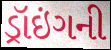
ડ્રૉઇંગની